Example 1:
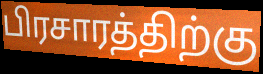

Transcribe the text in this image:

பிரசாரத்திற்கு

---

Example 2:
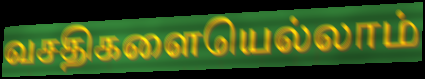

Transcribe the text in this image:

வசதிகளையெல்லாம்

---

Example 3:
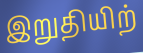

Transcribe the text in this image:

இறுதியிற்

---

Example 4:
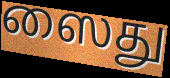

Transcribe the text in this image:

ஸைது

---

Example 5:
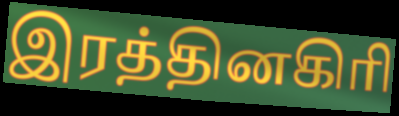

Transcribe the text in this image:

இரத்தினகிரி